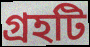
গ্রহটি